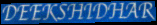
DEEKSHIDHAR